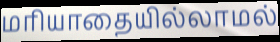
மரியாதையில்லாமல்